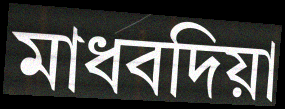
মাধবদিয়া